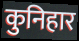
कुनिहार